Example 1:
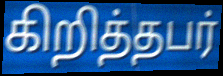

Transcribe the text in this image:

கிறித்தபர்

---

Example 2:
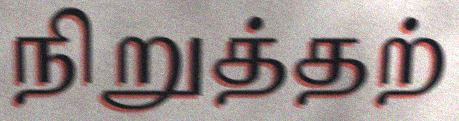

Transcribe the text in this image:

நிறுத்தற்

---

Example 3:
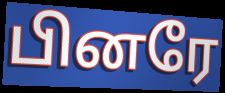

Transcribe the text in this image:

பினரே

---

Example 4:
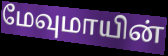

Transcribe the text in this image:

மேவுமாயின்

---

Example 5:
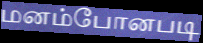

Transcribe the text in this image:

மனம்போனபடி